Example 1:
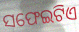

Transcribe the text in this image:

ସଫେଇଟିଏ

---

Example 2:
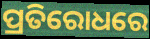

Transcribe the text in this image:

ପ୍ରତିରୋଧରେ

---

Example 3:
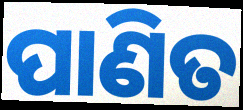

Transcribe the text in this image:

ପାଣିତ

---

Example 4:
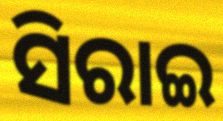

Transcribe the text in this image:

ସିରାଇ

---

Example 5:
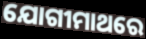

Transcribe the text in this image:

ଯୋଗୀମାଥରେ